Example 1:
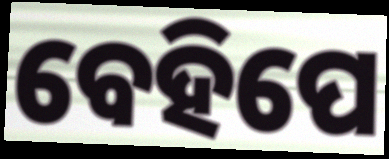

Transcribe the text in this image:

ବେହିପେ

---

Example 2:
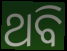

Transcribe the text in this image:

ଥବି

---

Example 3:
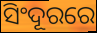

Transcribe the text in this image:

ସିଂଦୂରରେ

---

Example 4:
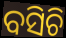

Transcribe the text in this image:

ବସିଚି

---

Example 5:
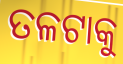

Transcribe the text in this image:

ତଳଟାକୁ